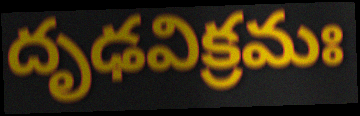
దృఢవిక్రమః